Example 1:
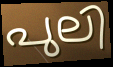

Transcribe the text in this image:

പുലി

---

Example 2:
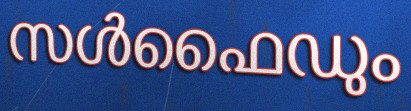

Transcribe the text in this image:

സൾഫൈഡും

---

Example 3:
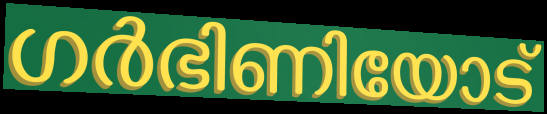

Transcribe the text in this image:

ഗർഭിണിയോട്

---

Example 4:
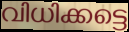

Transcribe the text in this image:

വിധിക്കട്ടെ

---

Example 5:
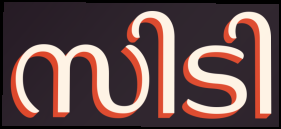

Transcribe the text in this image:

സിടി